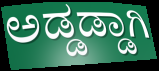
ಅಡ್ಡಡ್ಡಾಗಿ